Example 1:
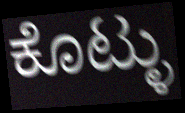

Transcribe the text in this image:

ಕೊಟ್ಳು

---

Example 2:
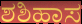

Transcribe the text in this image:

ಶಶಿಹಾಸ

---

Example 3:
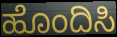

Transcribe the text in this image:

ಹೊಂದಿಸಿ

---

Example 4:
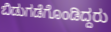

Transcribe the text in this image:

ಬಿಡುಗಡೆಗೊಂಡಿದ್ದರು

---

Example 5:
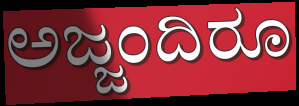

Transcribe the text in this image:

ಅಜ್ಜಂದಿರೂ